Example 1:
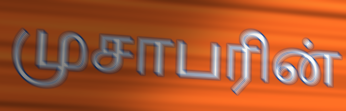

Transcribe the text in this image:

முசாபரின்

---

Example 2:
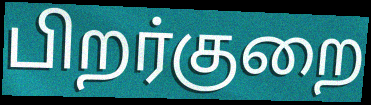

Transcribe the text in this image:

பிறர்குறை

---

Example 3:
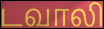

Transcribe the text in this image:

டவாலி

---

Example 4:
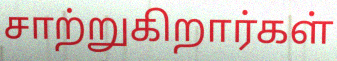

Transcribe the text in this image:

சாற்றுகிறார்கள்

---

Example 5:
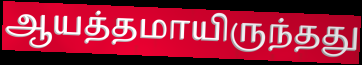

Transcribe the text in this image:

ஆயத்தமாயிருந்தது